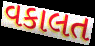
વકાલત